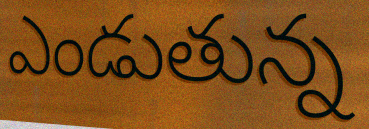
ఎండుతున్న